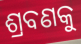
ଶ୍ରବଣକୁ